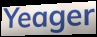
Yeager